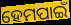
ହେମପାଇଁ